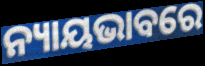
ନ୍ୟାୟଭାବରେ